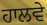
ਹਾਲਵੇ